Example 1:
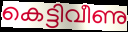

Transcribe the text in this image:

കെട്ടിവീണു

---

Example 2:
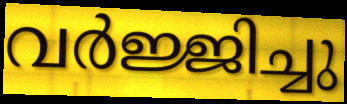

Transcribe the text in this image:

വർജ്ജിച്ചു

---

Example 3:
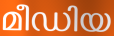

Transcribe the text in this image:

മീഡിയ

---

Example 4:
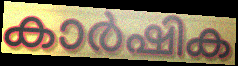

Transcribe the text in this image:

കാർഷിക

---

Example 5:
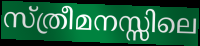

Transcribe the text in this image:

സ്ത്രീമനസ്സിലെ